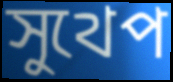
সুথেপ